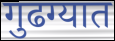
गुढग्यात